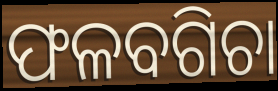
ଫଳବଗିଚା